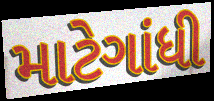
માટેગાંધી